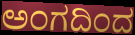
ಅಂಗದಿಂದ